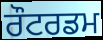
ਰੌਟਰਡਮ